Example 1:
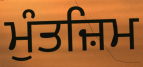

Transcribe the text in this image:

ਮੁੰਤਜ਼ਿਮ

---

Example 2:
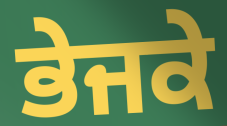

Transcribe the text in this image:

ਭੇਜਕੇ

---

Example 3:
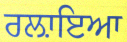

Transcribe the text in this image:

ਰਲ਼ਾਇਆ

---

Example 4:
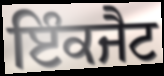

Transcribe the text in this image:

ਇੰਕਜੈਟ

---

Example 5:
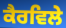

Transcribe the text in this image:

ਕੈਰਵਿਲੇ